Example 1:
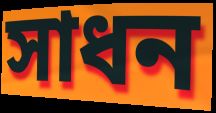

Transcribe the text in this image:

সাধন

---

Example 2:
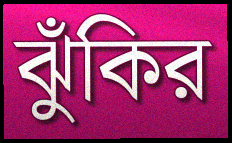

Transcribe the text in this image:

ঝুঁকির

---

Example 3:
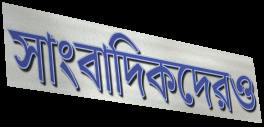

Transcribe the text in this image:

সাংবাদিকদেরও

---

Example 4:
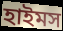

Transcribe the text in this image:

হাইমস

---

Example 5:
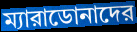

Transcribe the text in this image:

ম্যারাডোনাদের